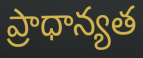
ప్రాధాన్యత